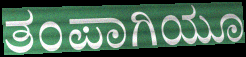
ತಂಪಾಗಿಯೂ